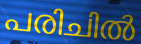
പരിചിൽ